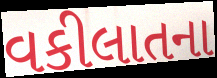
વકીલાતના